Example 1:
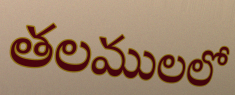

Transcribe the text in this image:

తలములలో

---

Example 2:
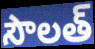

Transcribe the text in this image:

సౌలత్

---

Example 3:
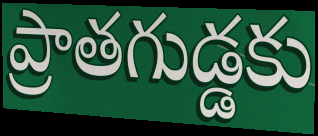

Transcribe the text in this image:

ప్రాతగుడ్డకు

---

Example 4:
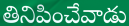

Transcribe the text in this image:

తినిపించేవాడు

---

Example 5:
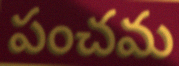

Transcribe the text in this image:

పంచమ